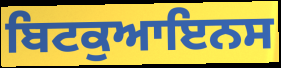
ਬਿਟਕੁਆਇਨਸ